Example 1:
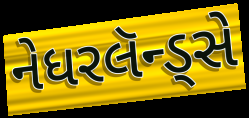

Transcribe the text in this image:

નેધરલૅન્ડ્સે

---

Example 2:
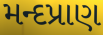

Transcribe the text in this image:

મન્દપ્રાણ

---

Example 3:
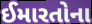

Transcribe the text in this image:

ઈમારતોના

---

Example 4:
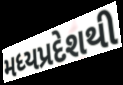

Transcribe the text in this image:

મધ્યપ્રદેશથી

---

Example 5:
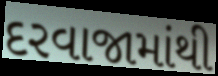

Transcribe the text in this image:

દરવાજામાંથી